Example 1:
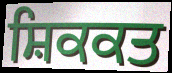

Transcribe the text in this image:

ਸ਼ਿਕਕਤ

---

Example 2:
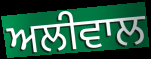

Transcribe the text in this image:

ਅਲੀਵਾਲ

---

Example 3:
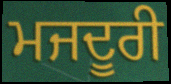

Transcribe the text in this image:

ਮਜਦੂਰੀ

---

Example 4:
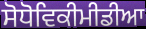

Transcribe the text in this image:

ਸੋਧੋਵਿਕੀਮੀਡੀਆ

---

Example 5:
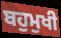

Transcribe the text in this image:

ਬਹੁਮੁਖੀ